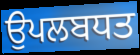
ਉਪਲਬਧਤ